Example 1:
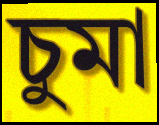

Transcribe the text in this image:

চুমা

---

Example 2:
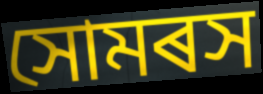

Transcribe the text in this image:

সোমৰস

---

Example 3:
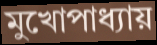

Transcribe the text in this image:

মুখোপাধ্যায়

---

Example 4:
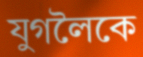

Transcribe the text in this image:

যুগলৈকে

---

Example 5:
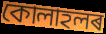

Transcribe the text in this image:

কোলাহলৰ